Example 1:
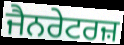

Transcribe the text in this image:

ਜੈਨਰੇਟਰਜ਼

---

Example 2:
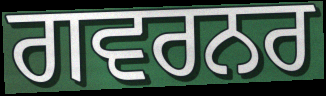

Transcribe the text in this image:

ਗਵਰਨਰ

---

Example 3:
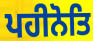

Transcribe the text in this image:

ਪਹੀਨੋਤਿ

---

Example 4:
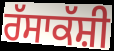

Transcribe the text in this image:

ਰੱਸਾਕੱਸ਼ੀ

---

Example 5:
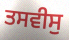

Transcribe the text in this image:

ਤਸਵੀਸੁ